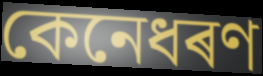
কেনেধৰণ